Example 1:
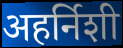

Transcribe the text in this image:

अहर्निशी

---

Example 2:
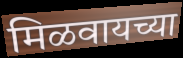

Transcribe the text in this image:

मिळवायच्या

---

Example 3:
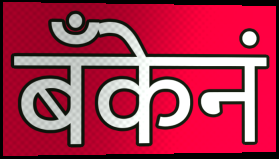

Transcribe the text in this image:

बॅंकेनं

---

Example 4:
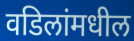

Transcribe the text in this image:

वडिलांमधील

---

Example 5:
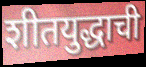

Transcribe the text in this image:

शीतयुद्धाची